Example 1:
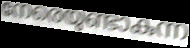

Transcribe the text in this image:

നേരെയുണ്ടാകുന്ന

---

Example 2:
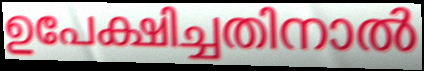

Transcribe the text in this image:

ഉപേക്ഷിച്ചതിനാൽ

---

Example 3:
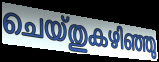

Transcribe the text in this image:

ചെയ്തുകഴിഞ്ഞു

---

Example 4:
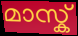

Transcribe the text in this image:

മാസ്ക്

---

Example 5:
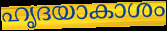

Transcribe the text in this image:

ഹൃദയാകാശം